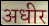
अधीर